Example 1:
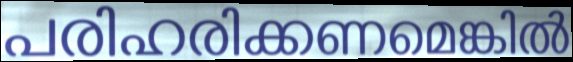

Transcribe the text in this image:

പരിഹരിക്കണമെങ്കിൽ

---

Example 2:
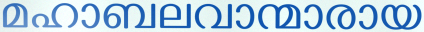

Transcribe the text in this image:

മഹാബലവാന്മാരായ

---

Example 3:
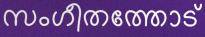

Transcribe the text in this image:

സംഗീതത്തോട്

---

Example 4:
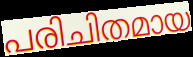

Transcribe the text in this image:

പരിചിതമായ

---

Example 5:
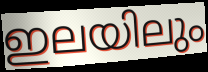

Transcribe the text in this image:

ഇലയിലും